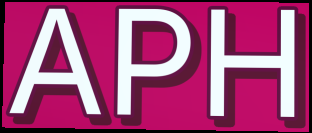
APH